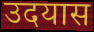
उदयास